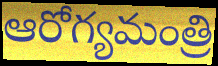
ఆరోగ్యమంత్రి